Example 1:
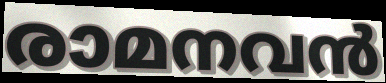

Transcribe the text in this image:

രാമനവൻ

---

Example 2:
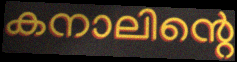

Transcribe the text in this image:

കനാലിന്റെ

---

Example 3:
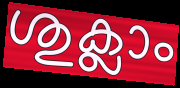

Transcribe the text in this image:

ശുക്ലാം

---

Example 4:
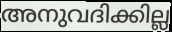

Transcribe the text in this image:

അനുവദിക്കില്ല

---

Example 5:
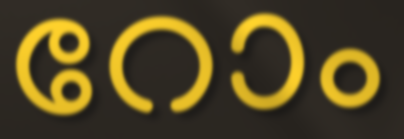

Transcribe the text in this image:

റോം